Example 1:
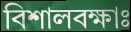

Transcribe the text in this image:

বিশালবক্ষাঃ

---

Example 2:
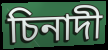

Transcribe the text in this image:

চিনাদী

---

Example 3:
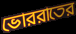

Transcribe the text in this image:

ভোররাতের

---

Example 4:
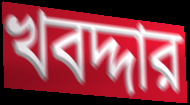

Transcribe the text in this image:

খবদ্দার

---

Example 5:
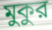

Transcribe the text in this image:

মুকুর